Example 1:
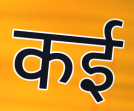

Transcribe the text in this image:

कई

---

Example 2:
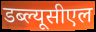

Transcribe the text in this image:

डब्ल्यूसीएल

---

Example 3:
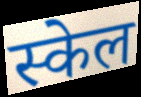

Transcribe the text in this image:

स्केल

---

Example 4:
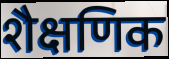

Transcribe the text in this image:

शैक्षणिक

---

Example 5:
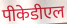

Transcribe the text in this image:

पीकेडीएल